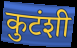
कुटंशी